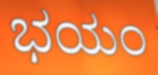
ಭಯಂ